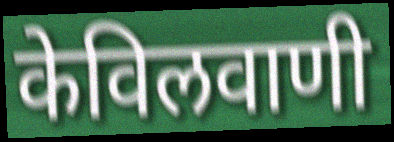
केविलवाणी